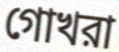
গোখরা